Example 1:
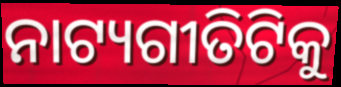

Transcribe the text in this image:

ନାଟ୍ୟଗୀତିଟିକୁ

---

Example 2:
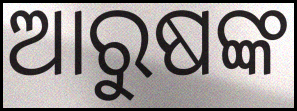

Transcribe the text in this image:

ଆରୁଷଙ୍କ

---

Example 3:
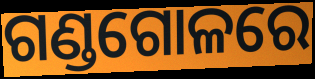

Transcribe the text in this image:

ଗଣ୍ଡଗୋଳରେ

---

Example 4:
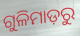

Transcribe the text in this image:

ଗୁଳିମାଡ଼ରୁ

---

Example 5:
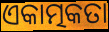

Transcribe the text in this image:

ଏକାତ୍ମକତା